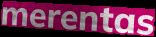
merentas